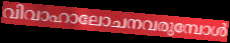
വിവാഹാലോചനവരുമ്പോൾ